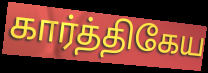
கார்த்திகேய